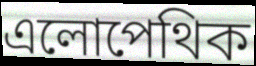
এলোপেথিক